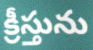
క్రీస్తును